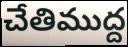
చేతిముద్ద